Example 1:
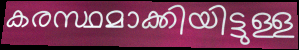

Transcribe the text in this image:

കരസ്ഥമാക്കിയിട്ടുള്ള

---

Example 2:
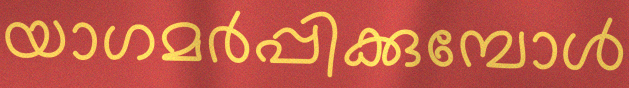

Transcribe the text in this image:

യാഗമർപ്പിക്കുമ്പോൾ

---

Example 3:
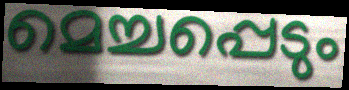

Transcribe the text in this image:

മെച്ചപ്പെടും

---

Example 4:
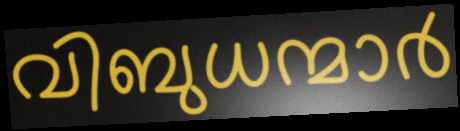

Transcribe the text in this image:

വിബുധന്മാർ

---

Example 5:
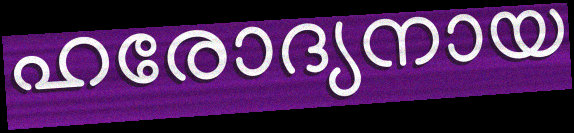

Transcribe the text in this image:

ഹരോദ്യനായ